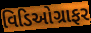
વિડિઓગ્રાફર